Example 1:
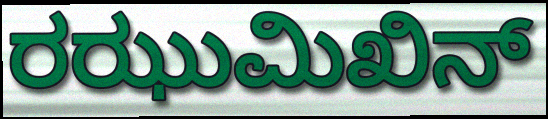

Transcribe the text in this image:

ರಝುಮಿಖಿನ್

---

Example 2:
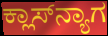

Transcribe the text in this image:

ಕ್ಲಾಸ್‌ನ್ಯಾಗ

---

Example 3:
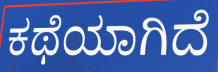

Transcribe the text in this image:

ಕಥೆಯಾಗಿದೆ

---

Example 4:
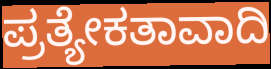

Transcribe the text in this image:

ಪ್ರತ್ಯೇಕತಾವಾದಿ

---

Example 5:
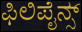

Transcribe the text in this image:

ಫಿಲಿಪೈನ್ಸ್